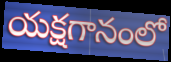
యక్షగానంలో